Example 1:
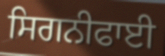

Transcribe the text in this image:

ਸਿਗਨੀਫਾਈ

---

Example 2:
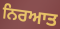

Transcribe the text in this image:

ਨਿਰਆਤ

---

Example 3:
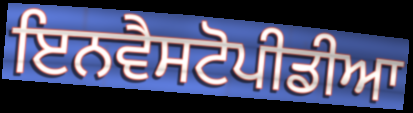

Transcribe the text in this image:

ਇਨਵੈਸਟੋਪੀਡੀਆ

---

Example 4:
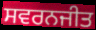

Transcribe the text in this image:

ਸਵਰਨਜੀਤ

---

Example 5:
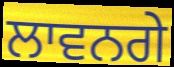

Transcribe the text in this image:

ਲਾਵਨਗੇ